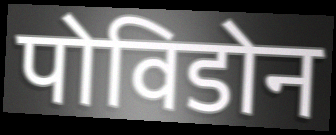
पोविडोन